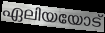
ഏലിയയോട്